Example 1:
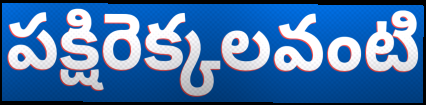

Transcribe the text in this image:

పక్షిరెక్కలవంటి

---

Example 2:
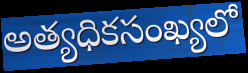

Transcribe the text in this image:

అత్యధికసంఖ్యలో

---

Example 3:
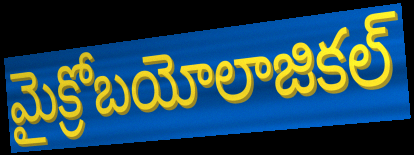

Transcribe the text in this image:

మైక్రోబయోలాజికల్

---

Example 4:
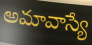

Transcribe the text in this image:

అమావాస్యే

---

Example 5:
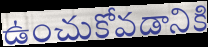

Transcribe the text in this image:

ఉంచుకోవడానికి